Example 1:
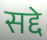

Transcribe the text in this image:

सद्दे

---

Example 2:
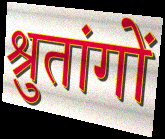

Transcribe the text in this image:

श्रुतांगों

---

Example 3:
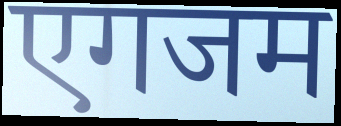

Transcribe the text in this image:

एगजम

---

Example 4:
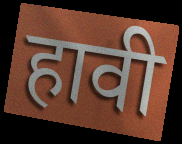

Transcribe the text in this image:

हावी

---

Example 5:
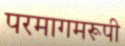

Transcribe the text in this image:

परमागमरूपी